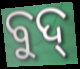
ବୁଦ୍